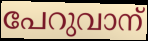
പേറുവാന്